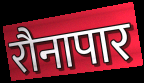
रौनापार